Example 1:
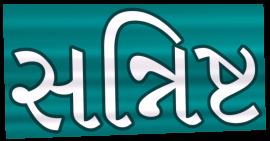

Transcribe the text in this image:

સન્નિષ્ટ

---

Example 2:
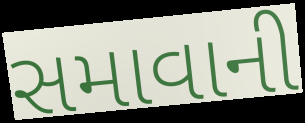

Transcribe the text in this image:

સમાવાની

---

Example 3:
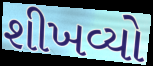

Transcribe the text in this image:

શીખવ્યો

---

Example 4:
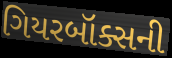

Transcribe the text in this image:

ગિયરબૉક્સની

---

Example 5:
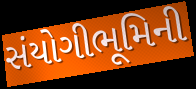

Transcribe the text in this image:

સંયોગીભૂમિની